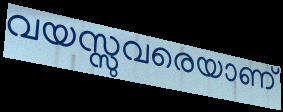
വയസ്സുവരെയാണ്